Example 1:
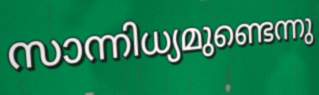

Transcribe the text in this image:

സാന്നിധ്യമുണ്ടെന്നു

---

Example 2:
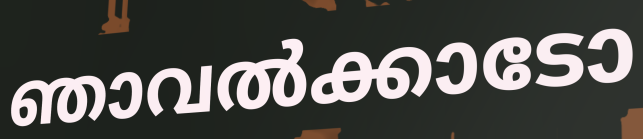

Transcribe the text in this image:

ഞാവൽക്കാടോ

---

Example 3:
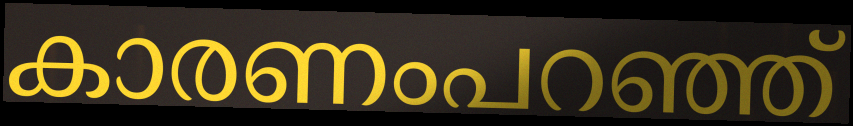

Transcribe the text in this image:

കാരണംപറഞ്ഞ്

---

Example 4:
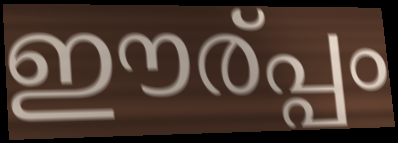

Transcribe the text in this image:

ഈര്പ്പം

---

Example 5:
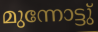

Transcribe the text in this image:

മുന്നോട്ടു്